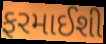
ફરમાઈશી